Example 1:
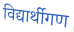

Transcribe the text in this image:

विद्यार्थीगण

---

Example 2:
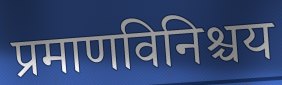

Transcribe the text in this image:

प्रमाणविनिश्चय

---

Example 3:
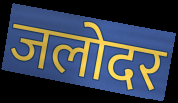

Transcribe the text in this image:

जलोदर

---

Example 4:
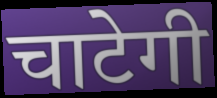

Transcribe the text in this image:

चाटेगी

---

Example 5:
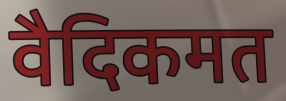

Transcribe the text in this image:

वैदिकमत